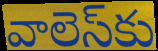
వాలెస్‌కు